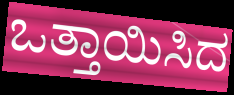
ಒತ್ತಾಯಿಸಿದ